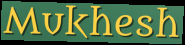
Mukhesh